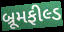
બ્રૂમફીલ્ડ